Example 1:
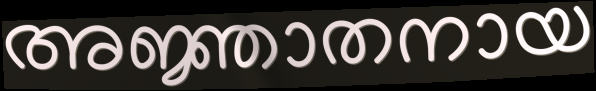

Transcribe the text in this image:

അജ്ഞാതനായ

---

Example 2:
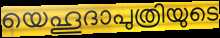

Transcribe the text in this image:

യെഹൂദാപുത്രിയുടെ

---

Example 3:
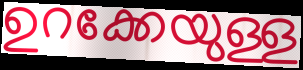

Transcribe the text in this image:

ഉറക്കേയുള്ള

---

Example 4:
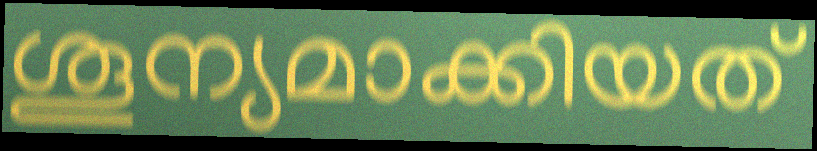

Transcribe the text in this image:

ശൂന്യമാക്കിയത്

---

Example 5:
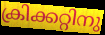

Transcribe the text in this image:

ക്രിക്കറ്റിനു